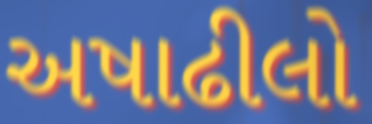
અષાઢીલો